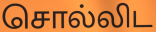
சொல்லிட